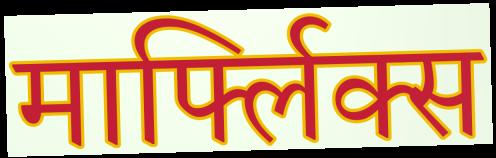
मार्फ्लिक्स